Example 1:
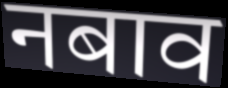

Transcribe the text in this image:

नबाव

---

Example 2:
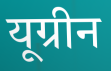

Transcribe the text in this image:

यूग्रीन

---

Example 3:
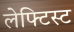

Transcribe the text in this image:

लेफ्टिस्ट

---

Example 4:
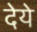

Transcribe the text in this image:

देये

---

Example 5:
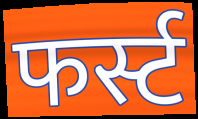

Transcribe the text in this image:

फर्स्ट